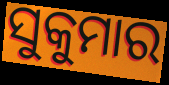
ସୁକୁମାର